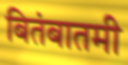
बितंबातमी